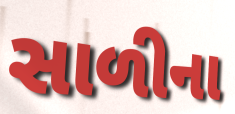
સાળીના